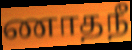
ணாதநீ